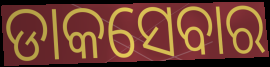
ଡାକସେବାର